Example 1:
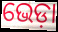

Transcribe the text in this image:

ଭେଡ଼ା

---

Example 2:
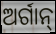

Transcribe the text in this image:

ଅର୍ଗାନ୍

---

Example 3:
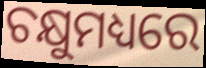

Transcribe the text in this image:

ଚକ୍ଷୁମଧ୍ଯରେ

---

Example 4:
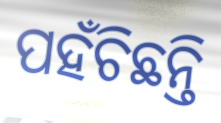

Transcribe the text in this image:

ପହଁଚିଛନ୍ତି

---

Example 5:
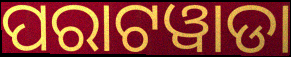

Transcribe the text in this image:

ପରାଟୱାଡା